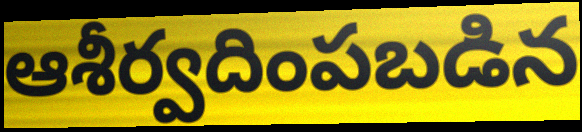
ఆశీర్వదింపబడిన